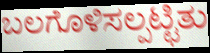
ಬಲಗೊಳಿಸಲ್ಪಟ್ಟಿತು